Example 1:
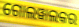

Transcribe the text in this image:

ଗୋଲୱାଲକର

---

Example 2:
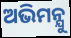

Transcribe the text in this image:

ଅଭିମନ୍ଯୁ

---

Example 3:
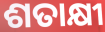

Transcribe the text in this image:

ଶତାକ୍ଷୀ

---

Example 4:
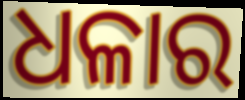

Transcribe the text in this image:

ଧଳାର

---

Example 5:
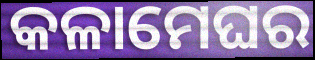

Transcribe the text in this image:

କଳାମେଘର